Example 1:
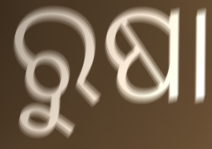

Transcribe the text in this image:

ରୁଷା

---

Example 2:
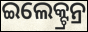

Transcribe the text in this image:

ଇଲେକ୍ଟ୍ରନ୍ର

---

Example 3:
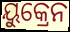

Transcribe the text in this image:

ୟୁକ୍ରେନ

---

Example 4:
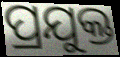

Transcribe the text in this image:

ପ୍ରଯୁକ୍ତ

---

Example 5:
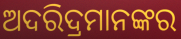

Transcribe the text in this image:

ଅଦରିଦ୍ରମାନଙ୍କର